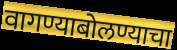
वागण्याबोलण्याचा